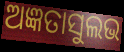
ଅଜ୍ଞତାସୁଲଭ